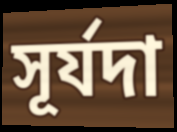
সূর্যদা